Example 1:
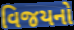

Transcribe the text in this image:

વિજયનો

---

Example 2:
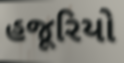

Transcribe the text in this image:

હજૂરિયો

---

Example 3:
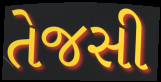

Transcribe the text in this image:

તેજસી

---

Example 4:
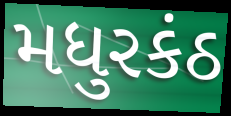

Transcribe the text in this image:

મધુરકંઠ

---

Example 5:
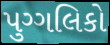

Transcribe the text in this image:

પુગ્ગલિકો